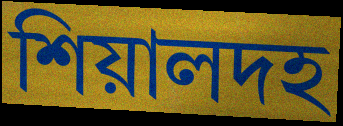
শিয়ালদহ